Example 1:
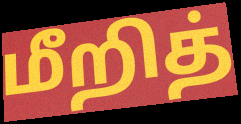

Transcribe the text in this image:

மீறித்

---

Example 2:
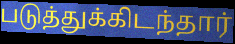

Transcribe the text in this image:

படுத்துக்கிடந்தார்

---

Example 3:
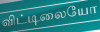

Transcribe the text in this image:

விட்டிலையோ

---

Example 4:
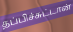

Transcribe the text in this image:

தப்பிச்சுட்டான்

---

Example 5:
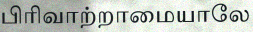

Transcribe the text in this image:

பிரிவாற்றாமையாலே